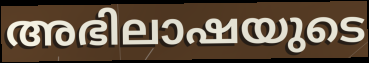
അഭിലാഷയുടെ